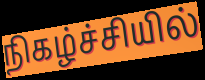
நிகழ்ச்சியில்